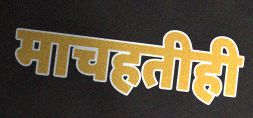
माचहतीही